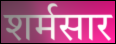
शर्मसार